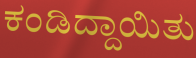
ಕಂಡಿದ್ದಾಯಿತು